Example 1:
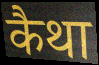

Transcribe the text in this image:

कैथा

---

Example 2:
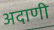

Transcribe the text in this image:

अदाणी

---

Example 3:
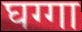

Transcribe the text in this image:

घग्गा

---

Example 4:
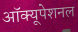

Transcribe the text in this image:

ऑक्यूपेशनल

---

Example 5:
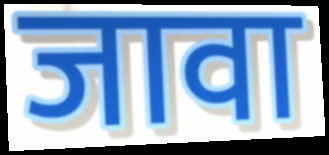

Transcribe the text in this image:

जावा